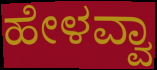
ಹೇಳವ್ವಾ